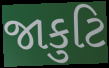
જાકુટિ